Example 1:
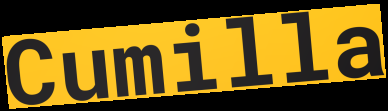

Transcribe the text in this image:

Cumilla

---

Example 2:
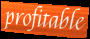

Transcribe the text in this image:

profitable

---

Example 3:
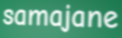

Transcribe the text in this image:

samajane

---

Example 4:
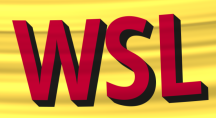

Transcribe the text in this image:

WSL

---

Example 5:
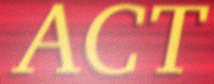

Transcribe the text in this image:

ACT